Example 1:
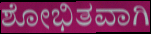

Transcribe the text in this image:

ಶೋಭಿತವಾಗಿ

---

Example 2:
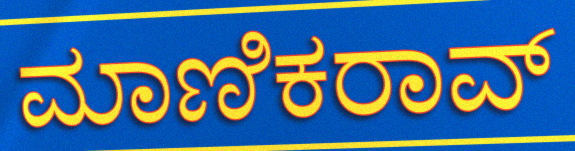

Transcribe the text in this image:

ಮಾಣಿಕರಾವ್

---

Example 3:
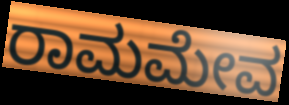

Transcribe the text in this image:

ರಾಮಮೇವ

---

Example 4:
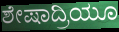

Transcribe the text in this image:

ಶೇಷಾದ್ರಿಯೂ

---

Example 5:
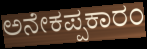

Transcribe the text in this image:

ಅನೇಕಪ್ಪಕಾರಂ